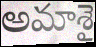
అమాశై